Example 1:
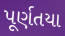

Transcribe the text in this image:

પૂર્ણતયા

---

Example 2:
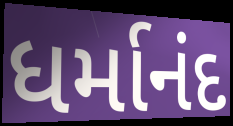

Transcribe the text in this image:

ધર્માનંદ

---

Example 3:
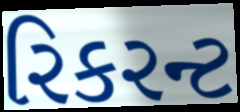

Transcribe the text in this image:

રિકરન્ટ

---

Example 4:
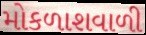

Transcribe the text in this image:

મોકળાશવાળી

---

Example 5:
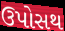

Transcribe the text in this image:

ઉપોસથ